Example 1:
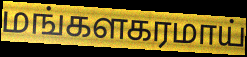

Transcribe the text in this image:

மங்களகரமாய்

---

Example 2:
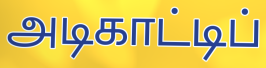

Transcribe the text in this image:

அடிகாட்டிப்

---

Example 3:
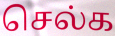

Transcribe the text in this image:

செல்க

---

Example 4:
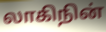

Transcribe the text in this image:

லாகிநின்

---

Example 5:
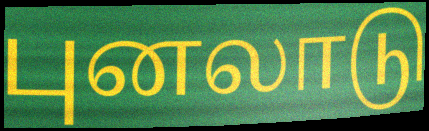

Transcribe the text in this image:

புனலாடு